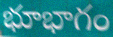
భూభాగం